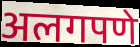
अलगपणे